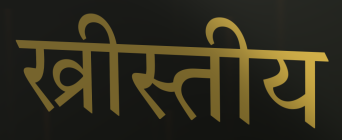
ख्रीस्तीय